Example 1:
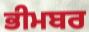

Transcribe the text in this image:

ਭੀਮਬਰ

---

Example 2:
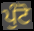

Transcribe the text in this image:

ਪੁੰਟੋ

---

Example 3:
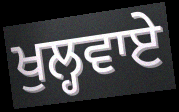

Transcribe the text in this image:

ਖੁਲ੍ਹਵਾਏ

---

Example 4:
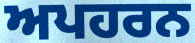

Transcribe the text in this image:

ਅਪਹਰਨ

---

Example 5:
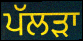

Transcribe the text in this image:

ਪੱਲੜਾ